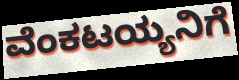
ವೆಂಕಟಯ್ಯನಿಗೆ